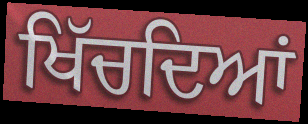
ਖਿੱਚਦਿਆਂ